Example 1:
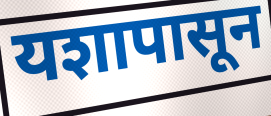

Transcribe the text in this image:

यशापासून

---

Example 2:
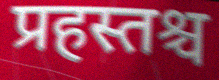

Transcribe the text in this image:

प्रहस्तश्च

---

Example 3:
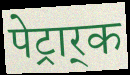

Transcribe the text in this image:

पेट्रार्क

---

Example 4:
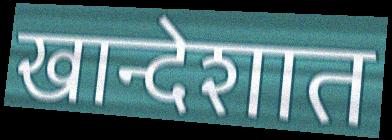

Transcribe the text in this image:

खान्देशात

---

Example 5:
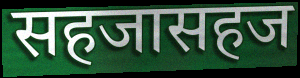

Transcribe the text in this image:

सहजासहज